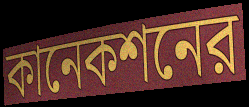
কানেকশনের